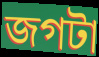
জগটা